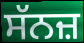
ਸੱਨਜ਼